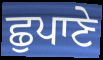
ਛੁਪਾਣੇ